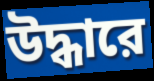
উদ্ধারে